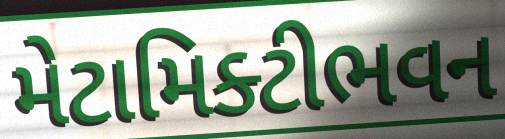
મેટામિક્ટીભવન